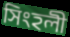
সিংহলী